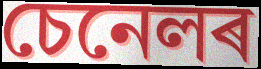
চেনেলৰ